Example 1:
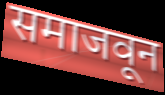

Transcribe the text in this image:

समाजवून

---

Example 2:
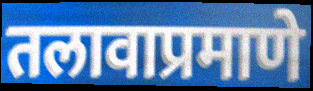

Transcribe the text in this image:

तलावाप्रमाणे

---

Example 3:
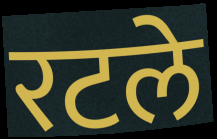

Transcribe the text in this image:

रटले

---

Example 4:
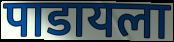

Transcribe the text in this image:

पाडायला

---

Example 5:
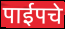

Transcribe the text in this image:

पाईपचे